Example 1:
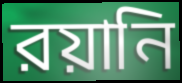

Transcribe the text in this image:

রয়ানি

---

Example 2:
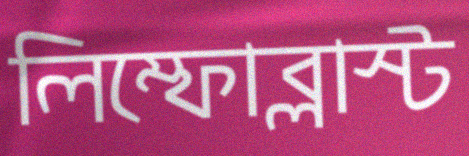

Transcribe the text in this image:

লিম্ফোব্লাস্ট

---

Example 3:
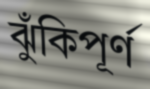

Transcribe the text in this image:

ঝুঁকিপূর্ণ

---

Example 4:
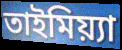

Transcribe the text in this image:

তাইমিয়্যা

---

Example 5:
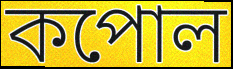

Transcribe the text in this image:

কপোল